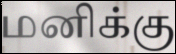
மனிக்கு